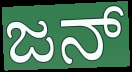
ಜನ್